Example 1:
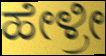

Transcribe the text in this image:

ಹೇಳ್ರೀ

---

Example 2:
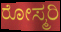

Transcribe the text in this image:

ರೋಸ್ಮರಿ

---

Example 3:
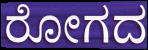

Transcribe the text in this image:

ರೋಗದ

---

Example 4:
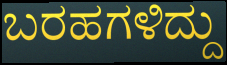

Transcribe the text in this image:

ಬರಹಗಳಿದ್ದು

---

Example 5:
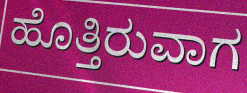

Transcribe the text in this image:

ಹೊತ್ತಿರುವಾಗ